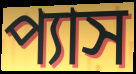
প্যাস